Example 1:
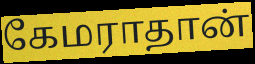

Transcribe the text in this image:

கேமராதான்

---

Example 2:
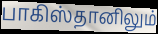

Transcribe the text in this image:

பாகிஸ்தானிலும்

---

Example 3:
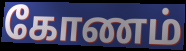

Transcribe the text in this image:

கோணம்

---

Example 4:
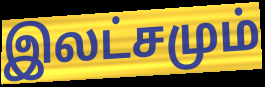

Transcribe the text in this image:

இலட்சமும்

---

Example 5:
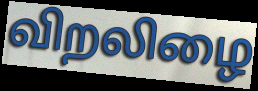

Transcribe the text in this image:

விறலிழை